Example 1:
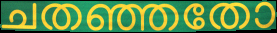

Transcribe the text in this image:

ചതഞ്ഞതോ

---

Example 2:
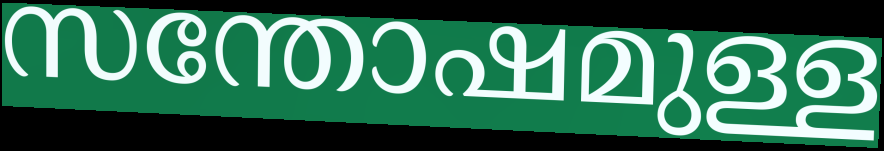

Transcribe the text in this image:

സന്തോഷമുള്ള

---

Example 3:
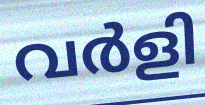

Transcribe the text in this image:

വർളി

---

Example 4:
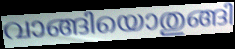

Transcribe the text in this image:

വാങ്ങിയൊതുങ്ങി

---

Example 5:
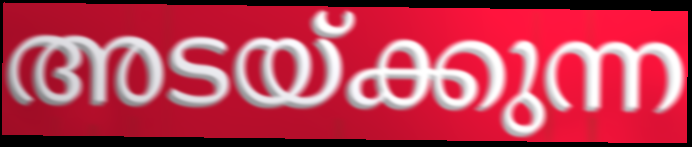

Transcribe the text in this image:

അടയ്ക്കുന്ന